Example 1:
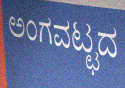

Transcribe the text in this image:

ಅಂಗವಟ್ಟದ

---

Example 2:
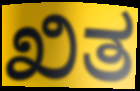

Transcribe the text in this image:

ಖಿತ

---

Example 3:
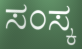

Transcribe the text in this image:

ಸಂಸ್ಕ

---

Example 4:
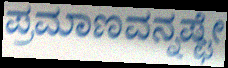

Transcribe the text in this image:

ಪ್ರಮಾಣವನ್ನಷ್ಟೇ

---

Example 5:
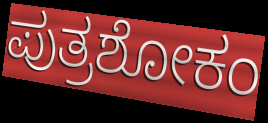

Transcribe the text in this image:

ಪುತ್ರಶೋಕಂ